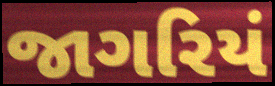
જાગરિયં